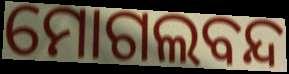
ମୋଗଲବନ୍ଦ